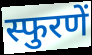
स्फुरणें